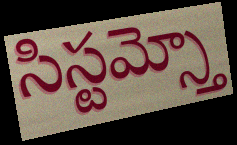
సిస్టమ్స్తో